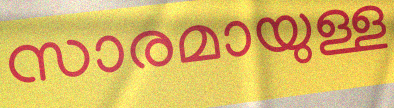
സാരമായുള്ള